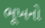
ભૂખનો